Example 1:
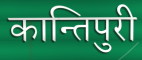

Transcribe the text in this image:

कान्तिपुरी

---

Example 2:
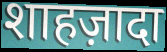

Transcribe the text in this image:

शाहज़ादा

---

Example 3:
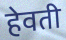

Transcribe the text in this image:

हेवती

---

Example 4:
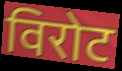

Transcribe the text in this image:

विरोट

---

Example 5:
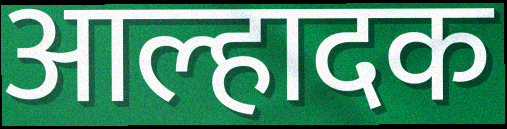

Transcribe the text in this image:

आल्हादक